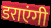
डराएंगी